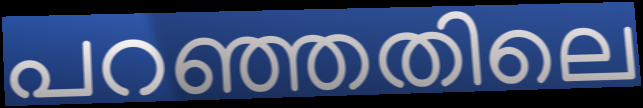
പറഞ്ഞതിലെ